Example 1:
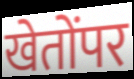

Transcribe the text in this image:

खेतोंपर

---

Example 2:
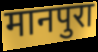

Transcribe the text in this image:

मानपुरा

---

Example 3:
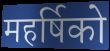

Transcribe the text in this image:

महर्षिको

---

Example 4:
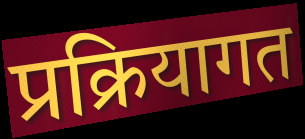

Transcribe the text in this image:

प्रक्रियागत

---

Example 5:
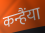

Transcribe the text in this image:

कन्हैंया